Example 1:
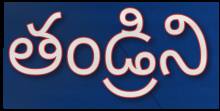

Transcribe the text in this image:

తండ్రిని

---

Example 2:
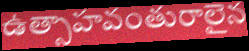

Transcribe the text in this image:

ఉత్సాహవంతురాలైన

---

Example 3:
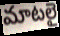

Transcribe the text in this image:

మాటలై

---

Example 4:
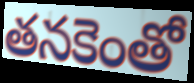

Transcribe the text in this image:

తనకెంతో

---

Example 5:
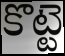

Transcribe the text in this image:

కొట్టె